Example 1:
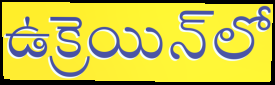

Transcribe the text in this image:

ఉక్రెయిన్‌లో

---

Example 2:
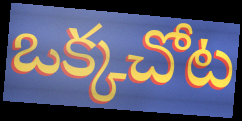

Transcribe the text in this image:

ఒక్కచోట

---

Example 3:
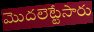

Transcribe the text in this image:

మొదలెట్టేసారు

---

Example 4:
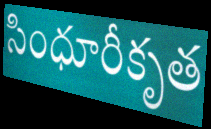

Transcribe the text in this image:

సింధూరీకృత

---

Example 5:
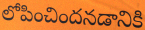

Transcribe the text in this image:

లోపించిందనడానికి